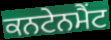
ਕਨਟੇਨਮੈਂਟ